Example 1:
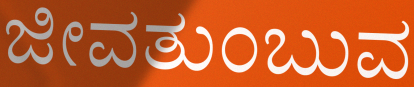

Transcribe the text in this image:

ಜೀವತುಂಬುವ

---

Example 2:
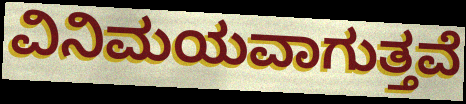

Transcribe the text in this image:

ವಿನಿಮಯವಾಗುತ್ತವೆ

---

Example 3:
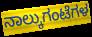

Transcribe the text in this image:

ನಾಲ್ಕುಗಂಟೆಗಳ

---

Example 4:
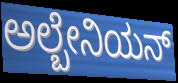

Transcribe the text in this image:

ಅಲ್ಬೇನಿಯನ್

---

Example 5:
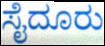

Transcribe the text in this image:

ಸೈದೂರು